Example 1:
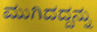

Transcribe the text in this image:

ಮುಗಿದದ್ದನ್ನು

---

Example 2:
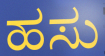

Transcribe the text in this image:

ಹಸು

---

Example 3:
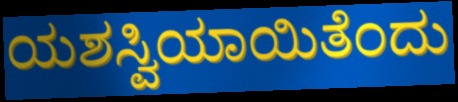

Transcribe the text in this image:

ಯಶಸ್ವಿಯಾಯಿತೆಂದು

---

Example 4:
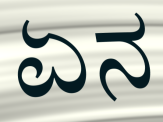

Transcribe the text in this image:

ಏನ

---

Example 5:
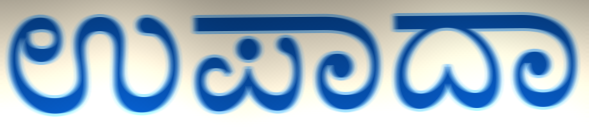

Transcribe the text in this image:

ಉಪಾದಾ